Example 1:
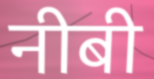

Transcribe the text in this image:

नीबी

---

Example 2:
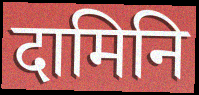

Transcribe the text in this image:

दामिनि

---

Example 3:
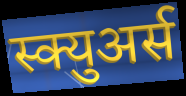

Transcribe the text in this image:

स्क्युअर्स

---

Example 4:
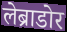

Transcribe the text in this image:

लेब्राडोर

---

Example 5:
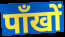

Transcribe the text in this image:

पाँखों